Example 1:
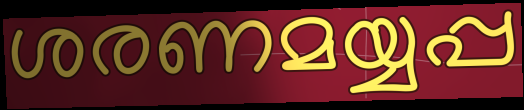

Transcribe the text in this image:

ശരണമയ്യപ്പ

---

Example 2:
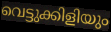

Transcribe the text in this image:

വെട്ടുക്കിളിയും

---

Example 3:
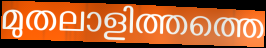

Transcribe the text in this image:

മുതലാളിത്തത്തെ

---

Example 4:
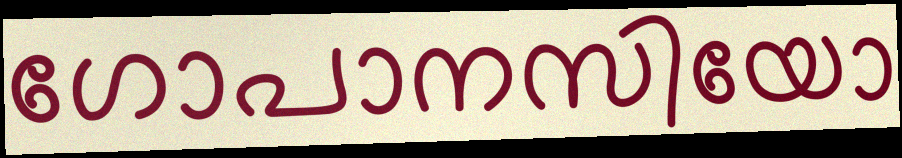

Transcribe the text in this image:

ഗോപാനസിയോ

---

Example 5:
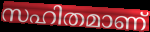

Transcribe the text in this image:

സഹിതമാണ്